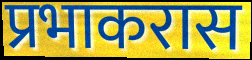
प्रभाकरास